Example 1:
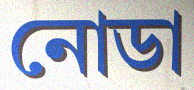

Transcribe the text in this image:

নোডা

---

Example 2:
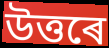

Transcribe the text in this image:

উত্তৰে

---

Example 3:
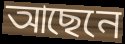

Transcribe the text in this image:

আছেনে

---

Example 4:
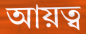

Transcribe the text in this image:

আয়ত্ব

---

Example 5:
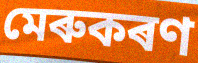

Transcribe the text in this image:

মেৰুকৰণ